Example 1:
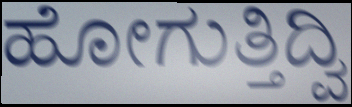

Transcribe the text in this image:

ಹೋಗುತ್ತಿದ್ವಿ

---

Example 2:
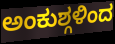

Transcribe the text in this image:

ಅಂಕುಶ್ಗಳಿಂದ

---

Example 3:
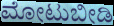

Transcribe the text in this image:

ಮೋಟುಬೀಡಿ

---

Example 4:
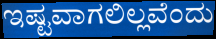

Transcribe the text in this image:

ಇಷ್ಟವಾಗಲಿಲ್ಲವೆಂದು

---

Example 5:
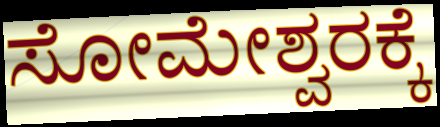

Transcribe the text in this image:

ಸೋಮೇಶ್ವರಕ್ಕೆ